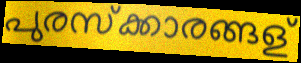
പുരസ്ക്കാരങ്ങള്